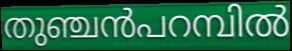
തുഞ്ചൻപറമ്പിൽ